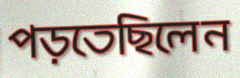
পড়তেছিলেন